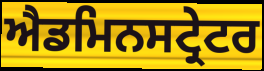
ਐਡਮਿਨਸਟ੍ਰੇਟਰ